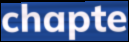
chapte